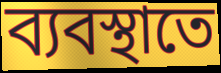
ব্যবস্থাতে